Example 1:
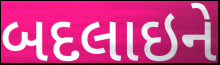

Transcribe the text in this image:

બદલાઇને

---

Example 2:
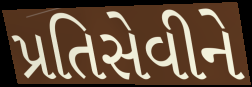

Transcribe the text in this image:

પ્રતિસેવીને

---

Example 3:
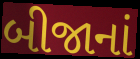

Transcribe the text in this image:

બીજાનાં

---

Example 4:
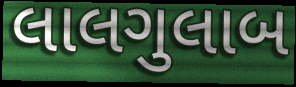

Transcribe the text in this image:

લાલગુલાબ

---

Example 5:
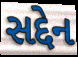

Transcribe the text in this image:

સદ્દેન